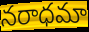
నరాధమా